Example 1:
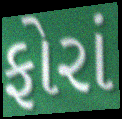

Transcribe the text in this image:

ફોરાં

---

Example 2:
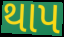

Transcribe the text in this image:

થાપ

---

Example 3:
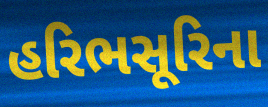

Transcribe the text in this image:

હરિભસૂરિના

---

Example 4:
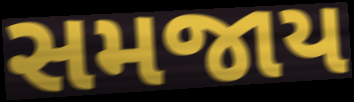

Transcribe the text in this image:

સમજાય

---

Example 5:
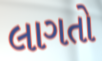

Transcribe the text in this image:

લાગતો